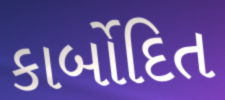
કાર્બોદિત